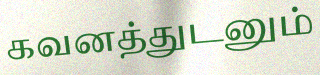
கவனத்துடனும்